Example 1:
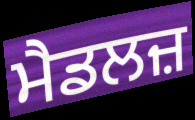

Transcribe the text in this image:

ਮੈਡਲਜ਼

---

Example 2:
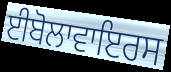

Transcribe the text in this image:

ਈਬੋਲਾਵਾਇਰਸ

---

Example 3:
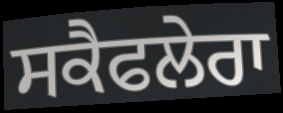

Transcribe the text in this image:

ਸਕੈਫਲੇਰਾ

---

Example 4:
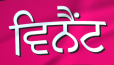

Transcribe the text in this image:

ਵਿਨੈਂਟ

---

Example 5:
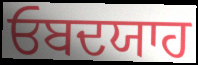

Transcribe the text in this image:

ਓਬਦਯਾਹ